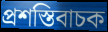
প্রশস্তিবাচক